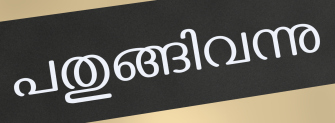
പതുങ്ങിവന്നു